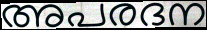
അപരദന